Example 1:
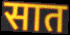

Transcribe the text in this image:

सात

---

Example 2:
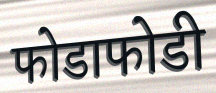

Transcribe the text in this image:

फोडाफोडी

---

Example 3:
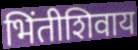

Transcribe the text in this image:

भिंतीशिवाय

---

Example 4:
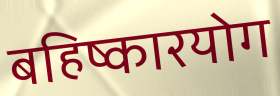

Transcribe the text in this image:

बहिष्कारयोग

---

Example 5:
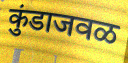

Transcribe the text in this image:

कुंडाजवळ